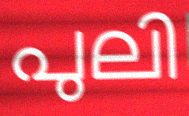
പുലി